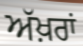
ਅੱਖ਼ਰਾਂ